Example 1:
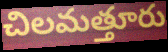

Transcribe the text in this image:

చిలమత్తూరు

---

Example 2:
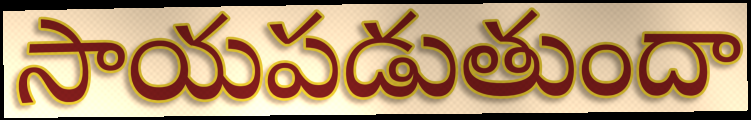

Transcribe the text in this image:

సాయపడుతుందా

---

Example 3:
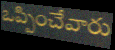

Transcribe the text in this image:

ఒప్పించేవారు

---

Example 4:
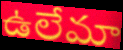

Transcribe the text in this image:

ఉలేమా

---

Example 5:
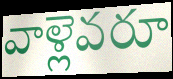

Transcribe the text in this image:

వాళ్లెవరూ